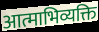
आत्माभिव्यक्ति